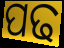
ପଢ